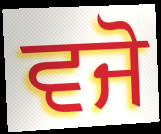
ਵਜੋ